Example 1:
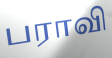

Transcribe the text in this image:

பராவி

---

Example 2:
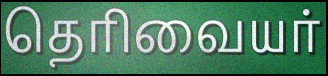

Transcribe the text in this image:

தெரிவையர்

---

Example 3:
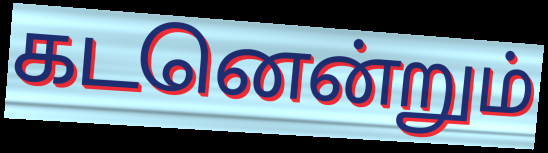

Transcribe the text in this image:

கடனென்றும்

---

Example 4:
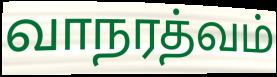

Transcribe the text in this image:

வாநரத்வம்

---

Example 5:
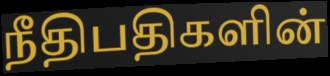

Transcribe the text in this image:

நீதிபதிகளின்